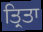
ਤ੍ਰਿਤਾ